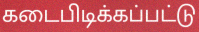
கடைபிடிக்கப்பட்டு